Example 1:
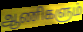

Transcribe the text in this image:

ஆணிகளும்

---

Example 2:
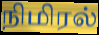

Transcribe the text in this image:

நிமிரல்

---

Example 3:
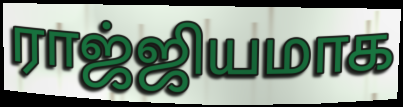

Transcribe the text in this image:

ராஜ்ஜியமாக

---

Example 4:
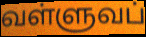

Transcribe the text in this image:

வள்ளுவப்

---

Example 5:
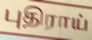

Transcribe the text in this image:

புதிராய்